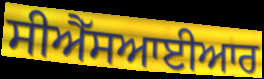
ਸੀਐੱਸਆਈਆਰ